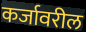
कर्जावरील